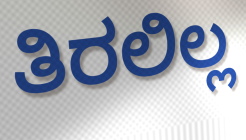
ತಿರಲಿಲ್ಲ